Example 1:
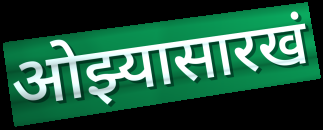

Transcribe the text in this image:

ओझ्यासारखं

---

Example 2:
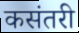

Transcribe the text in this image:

कसंतरी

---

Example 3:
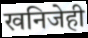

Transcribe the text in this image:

खनिजेही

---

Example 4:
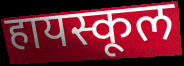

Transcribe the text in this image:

हायस्‍कूल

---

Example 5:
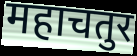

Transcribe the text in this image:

महाचतुर